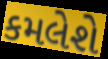
કમલેશે